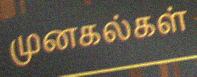
முனகல்கள்